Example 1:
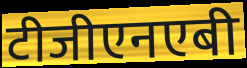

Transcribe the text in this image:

टीजीएनएबी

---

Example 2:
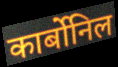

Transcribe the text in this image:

कार्बोनिल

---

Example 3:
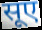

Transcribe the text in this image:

सूए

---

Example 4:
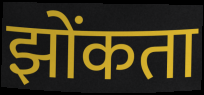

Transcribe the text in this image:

झोंकता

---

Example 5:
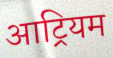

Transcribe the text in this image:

आट्रियम